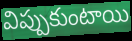
విప్పుకుంటాయి